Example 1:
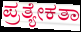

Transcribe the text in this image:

ಪ್ರತ್ಯೇಕತಾ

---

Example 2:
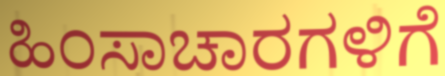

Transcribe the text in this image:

ಹಿಂಸಾಚಾರಗಳಿಗೆ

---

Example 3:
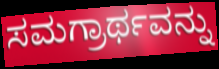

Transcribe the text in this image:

ಸಮಗ್ರಾರ್ಥವನ್ನು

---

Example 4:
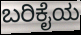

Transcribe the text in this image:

ಬರಿಕೈಯ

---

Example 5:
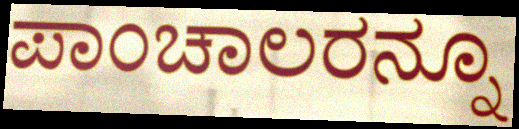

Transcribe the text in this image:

ಪಾಂಚಾಲರನ್ನೂ